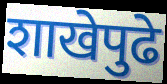
शाखेपुढे